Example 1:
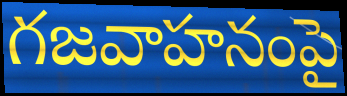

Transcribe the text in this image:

గజవాహనంపై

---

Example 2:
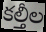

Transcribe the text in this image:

కల్తీల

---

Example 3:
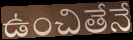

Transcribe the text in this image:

ఉంచితేనే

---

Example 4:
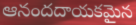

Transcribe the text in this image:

ఆనందదాయకమైన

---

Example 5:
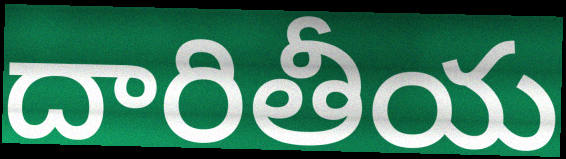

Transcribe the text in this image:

దారితీయ